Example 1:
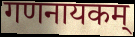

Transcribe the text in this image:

गणनायकम्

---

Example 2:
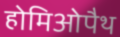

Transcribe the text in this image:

होमिओपैथ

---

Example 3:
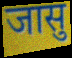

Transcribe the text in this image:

जासु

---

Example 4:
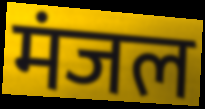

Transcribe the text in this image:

मंजल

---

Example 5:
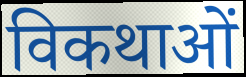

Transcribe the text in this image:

विकथाओं